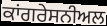
ਕਾਂਗਰੇਸਨੀਅਲ